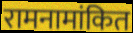
रामनामांकित